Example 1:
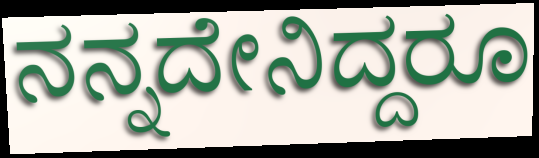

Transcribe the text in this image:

ನನ್ನದೇನಿದ್ದರೂ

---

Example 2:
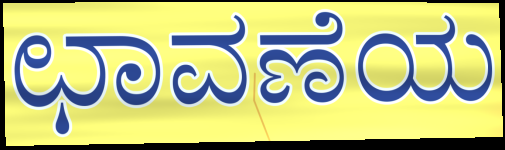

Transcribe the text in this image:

ಛಾವಣೆಯ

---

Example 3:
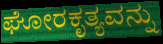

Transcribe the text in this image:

ಘೋರಕೃತ್ಯವನ್ನು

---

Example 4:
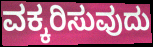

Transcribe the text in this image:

ವಕ್ಕರಿಸುವುದು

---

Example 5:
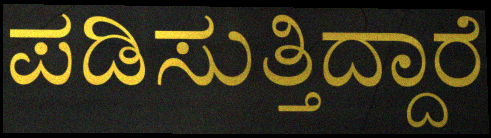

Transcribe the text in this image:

ಪಡಿಸುತ್ತಿದ್ದಾರೆ